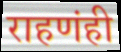
राहणंही